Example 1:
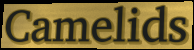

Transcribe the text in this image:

Camelids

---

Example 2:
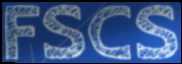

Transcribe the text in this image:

FSCS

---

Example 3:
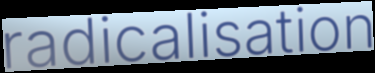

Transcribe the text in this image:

radicalisation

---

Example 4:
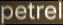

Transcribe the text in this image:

petrel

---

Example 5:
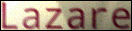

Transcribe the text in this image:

Lazare